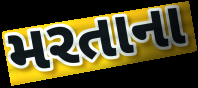
મરતાના